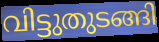
വിട്ടുതുടങ്ങി